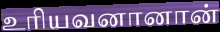
உரியவனானான்